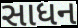
સાધન